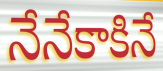
నేనేకాకినే